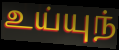
உய்யுந்